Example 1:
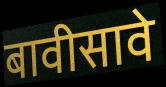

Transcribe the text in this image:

बावीसावे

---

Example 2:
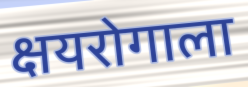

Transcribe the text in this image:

क्षयरोगाला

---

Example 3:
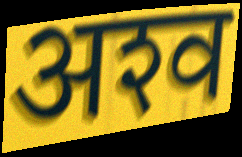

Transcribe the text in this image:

अश्व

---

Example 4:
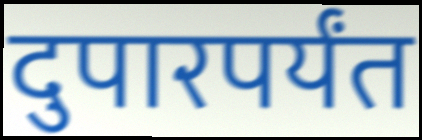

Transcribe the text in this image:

दुपारपर्यंत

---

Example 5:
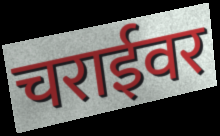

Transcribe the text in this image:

चराईवर